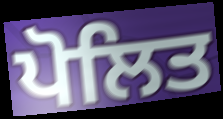
ਪੋਲਿਤ